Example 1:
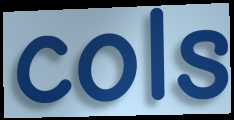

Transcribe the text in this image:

cols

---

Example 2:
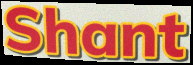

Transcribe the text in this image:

Shant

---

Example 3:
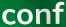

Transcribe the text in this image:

conf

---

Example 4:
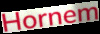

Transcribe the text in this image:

Hornem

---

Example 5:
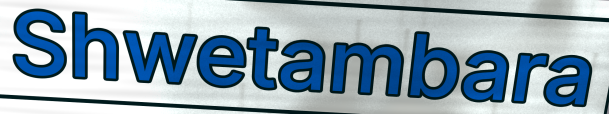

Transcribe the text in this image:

Shwetambara